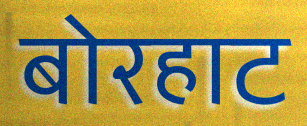
बोरहाट